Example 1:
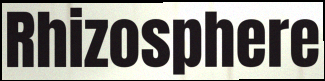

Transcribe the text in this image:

Rhizosphere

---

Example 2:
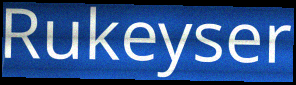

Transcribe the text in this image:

Rukeyser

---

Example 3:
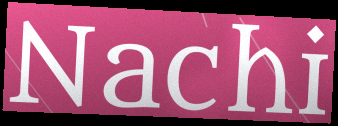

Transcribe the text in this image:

Nachi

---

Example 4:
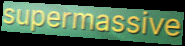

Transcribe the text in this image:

supermassive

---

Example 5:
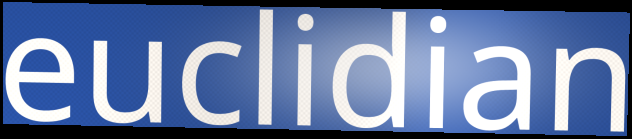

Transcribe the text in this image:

euclidian